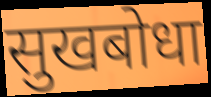
सुखबोधा